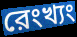
রেংখ্যং